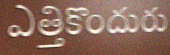
ఎత్తికొందురు